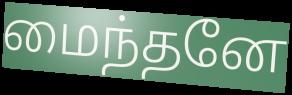
மைந்தனே